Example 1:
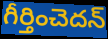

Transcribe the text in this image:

గీర్తించెదన్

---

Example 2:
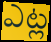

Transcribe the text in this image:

ఎట్ల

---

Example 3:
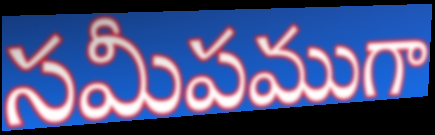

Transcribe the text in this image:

సమీపముగా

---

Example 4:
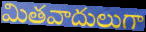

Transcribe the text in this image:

మితవాదులుగా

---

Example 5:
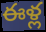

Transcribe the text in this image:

ఈళ్ల